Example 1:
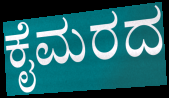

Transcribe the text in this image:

ಕೈಮರದ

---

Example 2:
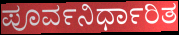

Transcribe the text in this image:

ಪೂರ್ವನಿರ್ಧಾರಿತ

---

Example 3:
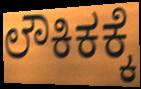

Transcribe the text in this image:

ಲೌಕಿಕಕ್ಕೆ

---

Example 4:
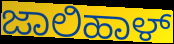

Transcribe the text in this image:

ಜಾಲಿಹಾಳ್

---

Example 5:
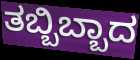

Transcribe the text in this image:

ತಬ್ಬಿಬ್ಬಾದ